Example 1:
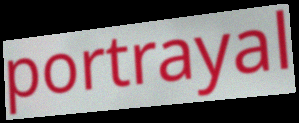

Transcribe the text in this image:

portrayal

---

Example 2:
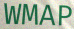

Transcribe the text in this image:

WMAP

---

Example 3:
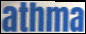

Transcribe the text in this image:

athma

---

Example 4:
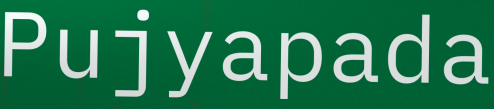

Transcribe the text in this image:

Pujyapada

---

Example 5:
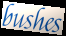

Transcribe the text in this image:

bushes